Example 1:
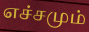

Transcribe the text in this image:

எச்சமும்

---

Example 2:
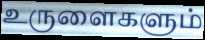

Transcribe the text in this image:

உருளைகளும்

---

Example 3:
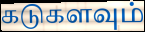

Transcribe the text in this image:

கடுகளவும்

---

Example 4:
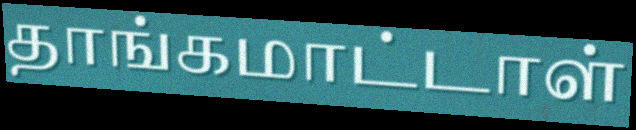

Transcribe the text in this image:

தாங்கமாட்டாள்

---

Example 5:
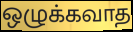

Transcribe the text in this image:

ஒழுக்கவாத